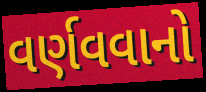
વર્ણવવાનો